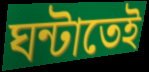
ঘন্টাতেই